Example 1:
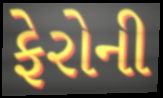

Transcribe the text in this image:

ફેરોની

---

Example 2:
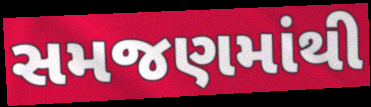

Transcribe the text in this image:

સમજણમાંથી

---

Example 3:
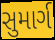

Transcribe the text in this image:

સુમાર્ગ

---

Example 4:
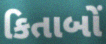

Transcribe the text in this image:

કિતાબોં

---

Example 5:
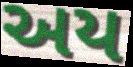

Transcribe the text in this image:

અય